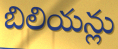
బిలియన్లు